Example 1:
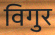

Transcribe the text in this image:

विगुर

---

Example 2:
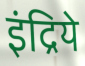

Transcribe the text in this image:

इंद्रिये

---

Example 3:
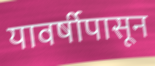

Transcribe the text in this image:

यावर्षीपासून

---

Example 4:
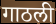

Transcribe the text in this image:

गाठली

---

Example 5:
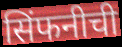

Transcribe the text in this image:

सिंफनीची